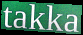
takka